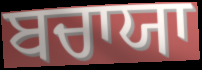
ਬਚਾਯਾ